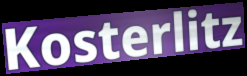
Kosterlitz